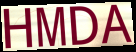
HMDA